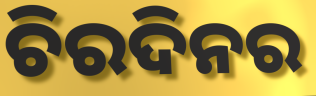
ଚିରଦିନର